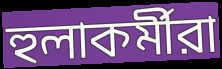
হুলাকর্মীরা